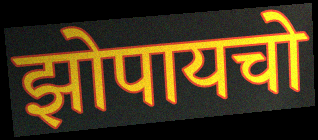
झोपायचो